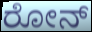
ರೋನ್